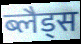
ब्लैड्स